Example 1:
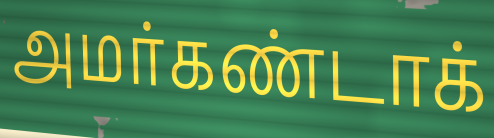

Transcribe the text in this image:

அமர்கண்டாக்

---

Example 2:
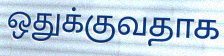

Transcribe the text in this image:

ஒதுக்குவதாக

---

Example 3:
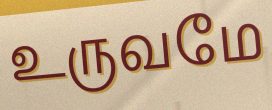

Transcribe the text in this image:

உருவமே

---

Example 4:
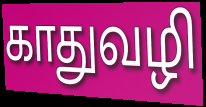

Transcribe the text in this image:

காதுவழி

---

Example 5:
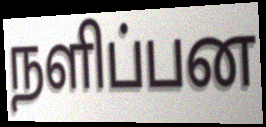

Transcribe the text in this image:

நளிப்பன